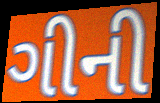
ગીની